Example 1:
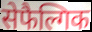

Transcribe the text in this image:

सेफैल्गिक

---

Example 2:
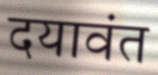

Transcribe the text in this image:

दयावंत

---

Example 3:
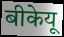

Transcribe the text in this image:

बीकेयू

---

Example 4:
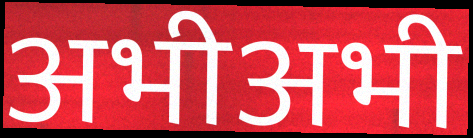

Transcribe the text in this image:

अभीअभी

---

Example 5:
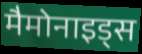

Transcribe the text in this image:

मैमोनाइड्स